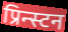
प्रिन्स्टन